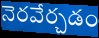
నెరవేర్చడం